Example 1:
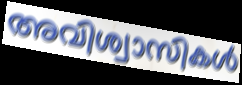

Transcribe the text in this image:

അവിശ്വാസികൾ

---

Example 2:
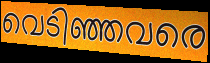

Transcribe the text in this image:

വെടിഞ്ഞവരെ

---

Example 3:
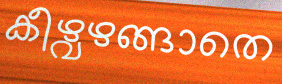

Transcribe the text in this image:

കീഴ്വഴങ്ങാതെ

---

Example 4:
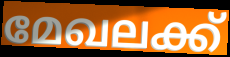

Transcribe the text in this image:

മേഖലക്ക്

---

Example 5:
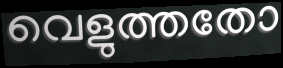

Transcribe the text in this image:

വെളുത്തതോ